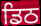
ਡਿਠ